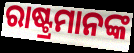
ରାଷ୍ଟ୍ରମାନଙ୍କ